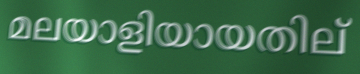
മലയാളിയായതില്